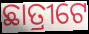
ଛାତ୍ରୀଟେ